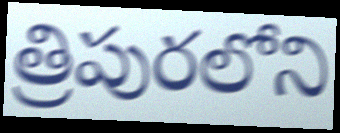
త్రిపురలోని